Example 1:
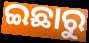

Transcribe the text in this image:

ଇଛାରୁ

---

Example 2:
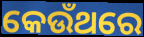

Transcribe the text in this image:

କେଉଁଥରେ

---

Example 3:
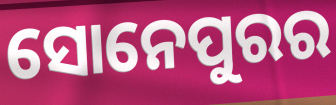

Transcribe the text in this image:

ସୋନେପୁରର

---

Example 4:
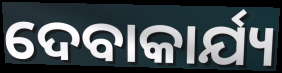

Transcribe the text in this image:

ଦେବାକାର୍ଯ୍ୟ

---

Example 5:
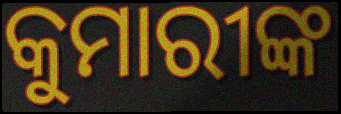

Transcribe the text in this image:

କୁମାରୀଙ୍କ